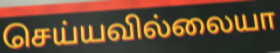
செய்யவில்லையா